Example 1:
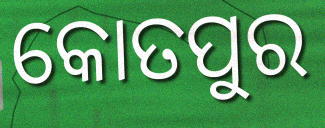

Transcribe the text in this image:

କୋତପୁର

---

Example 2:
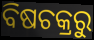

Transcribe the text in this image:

ବିଷଚକ୍ରରୁ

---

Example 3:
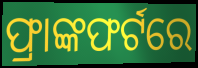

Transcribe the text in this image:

ଫ୍ରାଙ୍କଫର୍ଟରେ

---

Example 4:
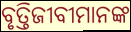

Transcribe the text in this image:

ବୃତ୍ତିଜୀବୀମାନଙ୍କ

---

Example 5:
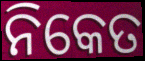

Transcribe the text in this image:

ନିକେତ